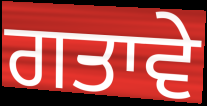
ਗਤਾਵੇ